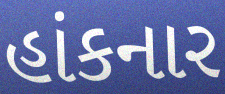
હાંકનાર